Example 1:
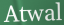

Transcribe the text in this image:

Atwal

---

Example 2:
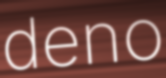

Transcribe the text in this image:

deno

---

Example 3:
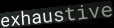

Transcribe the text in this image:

exhaustive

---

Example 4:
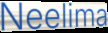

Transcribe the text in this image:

Neelima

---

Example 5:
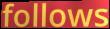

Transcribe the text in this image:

follows